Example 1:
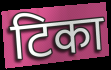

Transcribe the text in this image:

टिका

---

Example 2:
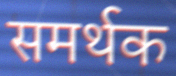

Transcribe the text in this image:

समर्थक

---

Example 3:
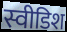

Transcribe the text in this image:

स्वीडिश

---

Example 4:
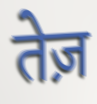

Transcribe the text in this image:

तेज़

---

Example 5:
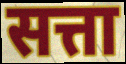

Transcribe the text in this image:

सत्ता